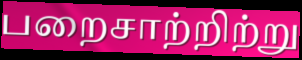
பறைசாற்றிற்று